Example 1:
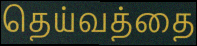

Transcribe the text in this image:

தெய்வத்தை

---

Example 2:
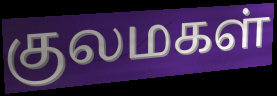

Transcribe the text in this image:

குலமகள்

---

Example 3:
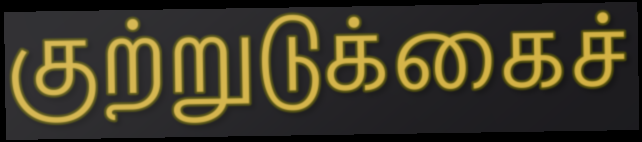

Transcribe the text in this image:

குற்றுடுக்கைச்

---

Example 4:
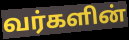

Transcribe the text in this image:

வர்களின்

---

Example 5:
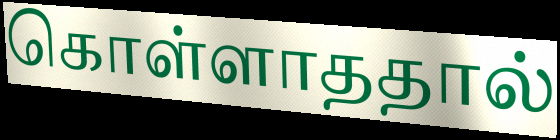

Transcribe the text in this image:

கொள்ளாததால்